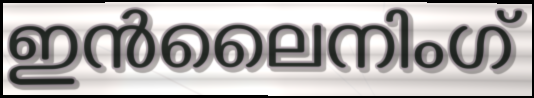
ഇൻലൈനിംഗ്